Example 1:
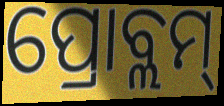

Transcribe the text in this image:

ପ୍ରୋବ୍ଲମ୍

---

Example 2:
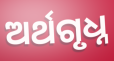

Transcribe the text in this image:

ଅର୍ଥଗୃଧ୍ନ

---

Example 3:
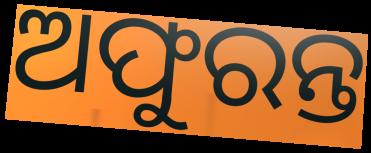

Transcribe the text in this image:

ଅଫୁରନ୍ତ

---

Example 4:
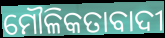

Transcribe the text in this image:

ମୌଳିକତାବାଦୀ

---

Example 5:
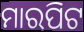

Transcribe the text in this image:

ମାରପିଟ